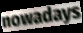
nowadays